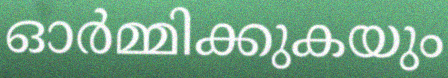
ഓർമ്മിക്കുകയും